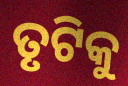
ତୃଟିକୁ